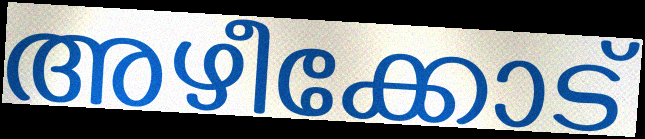
അഴീക്കോട്